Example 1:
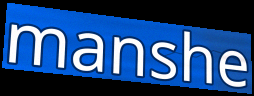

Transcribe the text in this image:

manshe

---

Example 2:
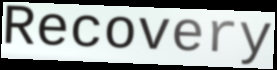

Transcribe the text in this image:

Recovery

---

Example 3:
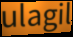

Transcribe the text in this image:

ulagil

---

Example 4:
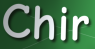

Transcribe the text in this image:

Chir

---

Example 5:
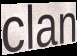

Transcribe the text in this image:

clan